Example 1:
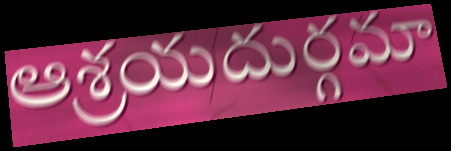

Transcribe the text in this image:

ఆశ్రయదుర్గమా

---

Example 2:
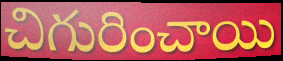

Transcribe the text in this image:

చిగురించాయి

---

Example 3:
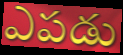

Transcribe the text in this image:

ఎపడు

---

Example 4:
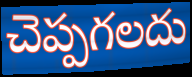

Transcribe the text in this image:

చెప్పగలదు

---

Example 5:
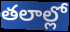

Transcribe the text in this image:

తలాల్లో